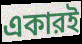
একারই